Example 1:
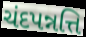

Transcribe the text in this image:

ચંદપન્નત્તિ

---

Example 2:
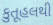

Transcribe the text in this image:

કુતૂહલથી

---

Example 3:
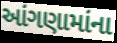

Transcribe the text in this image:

આંગણામાંના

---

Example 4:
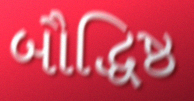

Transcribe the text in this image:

બૌદ્ધિષ્ઠ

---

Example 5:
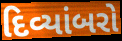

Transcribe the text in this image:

દિવ્યાંબરો